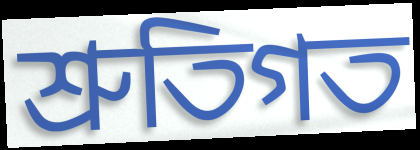
শ্রুতিগত